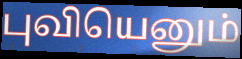
புவியெனும்